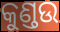
କୁଣ୍ଡଉ